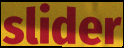
slider